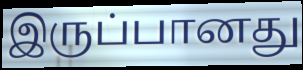
இருப்பானது